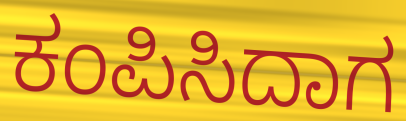
ಕಂಪಿಸಿದಾಗ